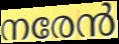
നരേൻ